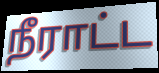
நீராட்ட